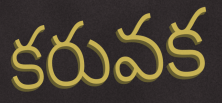
కరువక